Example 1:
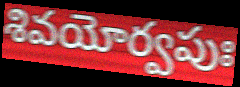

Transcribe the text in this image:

శివయోర్వపుః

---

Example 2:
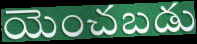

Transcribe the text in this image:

యెంచబడు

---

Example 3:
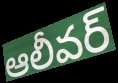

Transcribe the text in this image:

ఆలీవర్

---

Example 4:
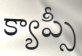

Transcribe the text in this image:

క్యాప్సీ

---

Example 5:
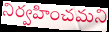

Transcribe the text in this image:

నిర్వహించమని